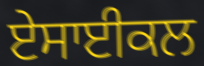
ਏਸਾਈਕਲ